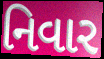
નિવાર